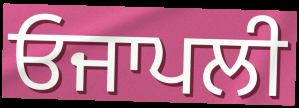
ਓਜਾਪਲੀ